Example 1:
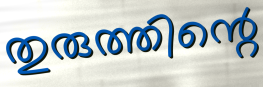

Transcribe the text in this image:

തുരുത്തിന്റെ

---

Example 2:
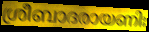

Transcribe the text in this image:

ശ്രീബാദരായണിഃ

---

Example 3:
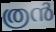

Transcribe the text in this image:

ത്രൻ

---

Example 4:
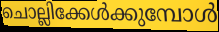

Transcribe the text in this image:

ചൊല്ലിക്കേൾക്കുമ്പോൾ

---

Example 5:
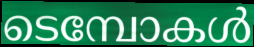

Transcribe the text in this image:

ടെമ്പോകൾ